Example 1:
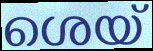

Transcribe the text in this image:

ശെയ്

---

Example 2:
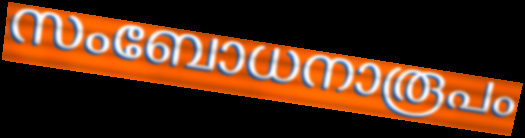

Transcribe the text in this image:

സംബോധനാരൂപം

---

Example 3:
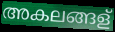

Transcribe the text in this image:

അകലങ്ങള്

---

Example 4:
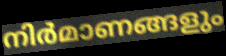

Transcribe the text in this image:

നിർമാണങ്ങളും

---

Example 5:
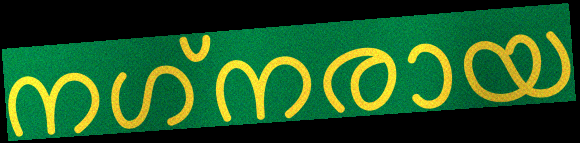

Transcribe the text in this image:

നഗ്‌നരായ